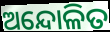
ଅନ୍ଦୋଳିତ